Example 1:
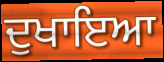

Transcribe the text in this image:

ਦੁਖਾਇਆ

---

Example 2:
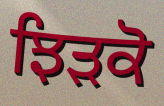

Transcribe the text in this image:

ਝਿੜਕੋ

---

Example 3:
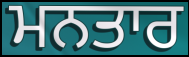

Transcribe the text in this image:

ਮਨਤਾਰ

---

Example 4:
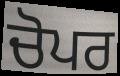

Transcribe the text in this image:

ਚੋਪਰ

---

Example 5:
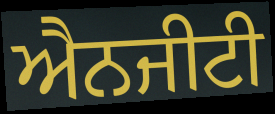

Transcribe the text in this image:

ਐਨਜੀਟੀ